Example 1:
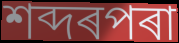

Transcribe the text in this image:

শব্দৰপৰা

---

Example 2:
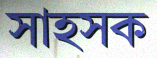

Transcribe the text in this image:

সাহসক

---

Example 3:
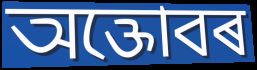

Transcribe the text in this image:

অক্তোবৰ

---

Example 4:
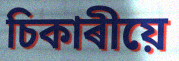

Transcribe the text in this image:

চিকাৰীয়ে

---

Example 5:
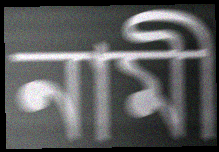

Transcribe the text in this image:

নামী